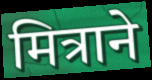
मित्राने